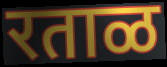
रताळ